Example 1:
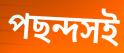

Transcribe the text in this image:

পছন্দসই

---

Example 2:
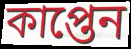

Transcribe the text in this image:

কাপ্তেন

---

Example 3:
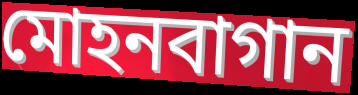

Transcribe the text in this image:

মোহনবাগান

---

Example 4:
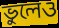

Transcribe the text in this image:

ভুলেও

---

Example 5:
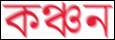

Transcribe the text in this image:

কঞ্চন